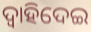
ଦ୍ବାହିଦେଇ